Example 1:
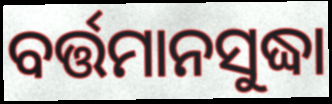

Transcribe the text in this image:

ବର୍ତ୍ତମାନସୁଦ୍ଧା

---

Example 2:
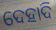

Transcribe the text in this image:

ଦେହାଦି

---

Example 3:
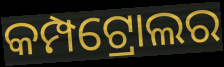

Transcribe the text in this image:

କମ୍ପଟ୍ରୋଲର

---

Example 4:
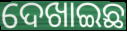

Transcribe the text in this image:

ଦେଖାଇଛ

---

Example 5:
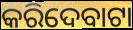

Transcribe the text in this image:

କରିଦେବାଟା